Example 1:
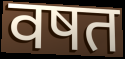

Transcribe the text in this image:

वषत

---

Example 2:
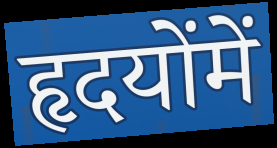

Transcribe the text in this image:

हृदयोंमें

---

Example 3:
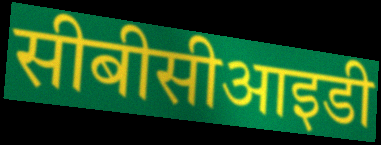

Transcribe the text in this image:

सीबीसीआइडी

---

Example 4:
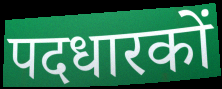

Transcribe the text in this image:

पदधारकों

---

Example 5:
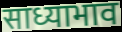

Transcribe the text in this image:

साध्याभाव